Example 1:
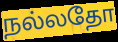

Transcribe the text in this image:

நல்லதோ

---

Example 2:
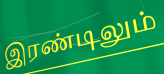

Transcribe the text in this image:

இரண்டிலும்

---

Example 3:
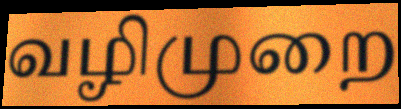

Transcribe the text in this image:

வழிமுறை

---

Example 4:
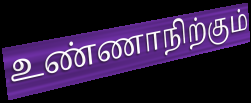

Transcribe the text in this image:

உண்ணாநிற்கும்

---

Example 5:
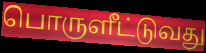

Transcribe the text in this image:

பொருளீட்டுவது